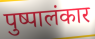
पुष्पालंकार